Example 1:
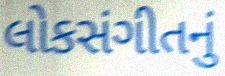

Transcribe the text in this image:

લોકસંગીતનું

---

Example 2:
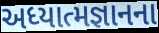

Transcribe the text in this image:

અધ્યાત્મજ્ઞાનના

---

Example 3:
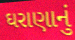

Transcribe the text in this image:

ઘરાણાનું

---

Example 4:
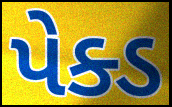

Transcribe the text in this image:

પેક્ડ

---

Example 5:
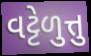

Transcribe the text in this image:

વટ્ટેળુત્તુ